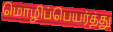
மொழிப்பெயர்த்து